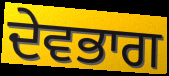
ਦੇਵਭਾਗ